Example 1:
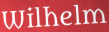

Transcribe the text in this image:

Wilhelm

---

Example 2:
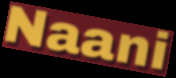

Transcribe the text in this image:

Naani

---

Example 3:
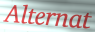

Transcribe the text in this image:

Alternat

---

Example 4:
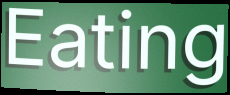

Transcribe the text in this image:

Eating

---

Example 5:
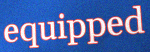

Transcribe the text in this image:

equipped